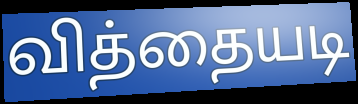
வித்தையடி